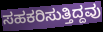
ಸಹಕರಿಸುತ್ತಿದ್ದವು